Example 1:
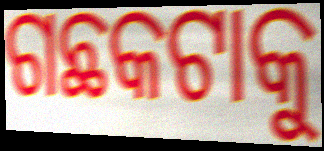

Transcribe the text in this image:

ଗଛକଟାକୁ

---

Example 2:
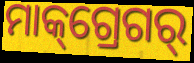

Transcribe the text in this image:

ମାକ୍‌ଗ୍ରେଗର୍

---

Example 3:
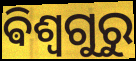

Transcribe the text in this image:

ଵିଶ୍ଵଗୁରୁ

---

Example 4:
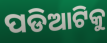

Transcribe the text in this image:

ପଡିଆଟିକୁ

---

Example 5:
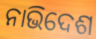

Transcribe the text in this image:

ନାଭିଦେଶ